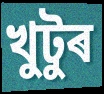
খুটুৰ